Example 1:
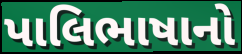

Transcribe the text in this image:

પાલિભાષાનો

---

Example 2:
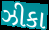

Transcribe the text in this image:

ઝીકા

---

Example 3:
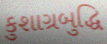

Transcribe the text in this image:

કુશાગ્રબુદ્ધિ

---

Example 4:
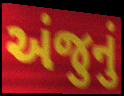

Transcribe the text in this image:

અંજુનું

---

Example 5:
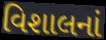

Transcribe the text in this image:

વિશાલનાં